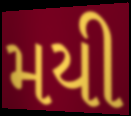
મયી